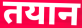
तयान